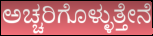
ಅಚ್ಚರಿಗೊಳ್ಳುತ್ತೇನೆ